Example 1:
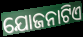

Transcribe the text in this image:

ଯୋଜନାଟିଏ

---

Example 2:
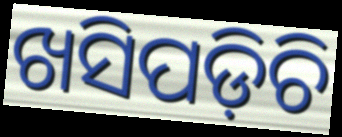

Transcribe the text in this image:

ଖସିପଡ଼ିଚି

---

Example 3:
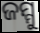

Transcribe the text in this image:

ଜମ୍ମୁ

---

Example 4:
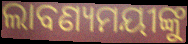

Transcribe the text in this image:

ଲାବଣ୍ୟମୟୀଙ୍କୁ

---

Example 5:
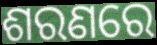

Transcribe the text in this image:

ଶରଣରେ